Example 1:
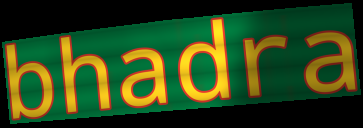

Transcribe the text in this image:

bhadra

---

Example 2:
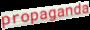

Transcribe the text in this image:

propaganda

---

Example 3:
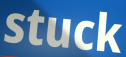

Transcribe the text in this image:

stuck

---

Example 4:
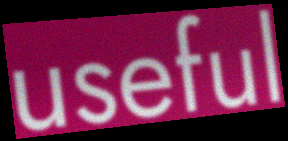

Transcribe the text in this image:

useful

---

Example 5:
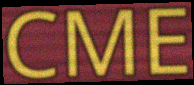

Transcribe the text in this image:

CME